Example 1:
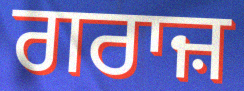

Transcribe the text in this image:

ਗਰਾਜ਼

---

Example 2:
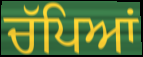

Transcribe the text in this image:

ਚੱਪਿਆਂ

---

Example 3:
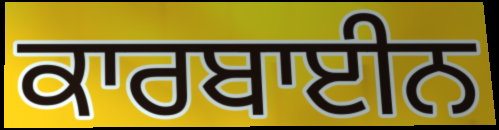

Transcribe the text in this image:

ਕਾਰਬਾਈਨ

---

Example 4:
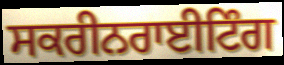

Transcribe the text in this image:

ਸਕਰੀਨਰਾਈਟਿੰਗ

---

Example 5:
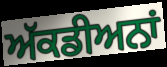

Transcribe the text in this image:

ਅੱਕਡੀਅਨਾਂ